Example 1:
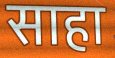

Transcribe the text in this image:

साहा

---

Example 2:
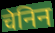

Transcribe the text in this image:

चेनिन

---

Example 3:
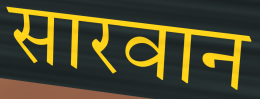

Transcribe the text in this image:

सारवान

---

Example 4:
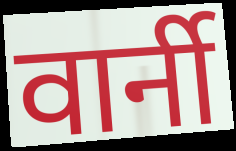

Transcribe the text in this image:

वार्नी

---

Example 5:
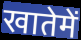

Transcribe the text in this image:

खातेमें